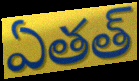
ఏతత్